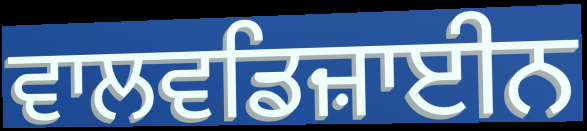
ਵਾਲਵਡਿਜ਼ਾਈਨ